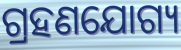
ଗ୍ରହଣଯୋଗ୍ୟ